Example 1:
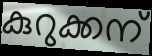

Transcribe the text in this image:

കുറുക്കന്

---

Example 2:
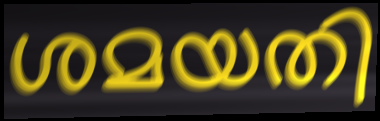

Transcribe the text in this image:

ശമയതി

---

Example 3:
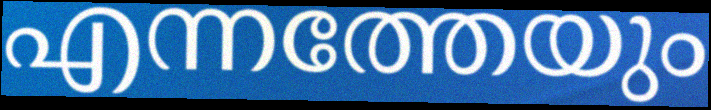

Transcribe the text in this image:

എന്നത്തേയും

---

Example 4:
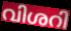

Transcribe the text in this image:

വിശറി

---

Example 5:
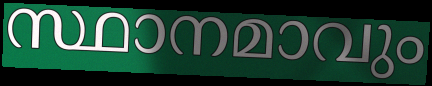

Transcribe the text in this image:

സ്ഥാനമാവും